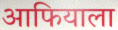
आफियाला